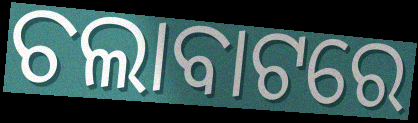
ଚଲାବାଟରେ